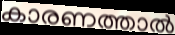
കാരണത്താൽ